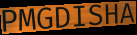
PMGDISHA